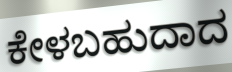
ಕೇಳಬಹುದಾದ